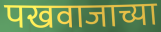
पखवाजाच्या